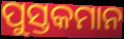
ପୁସ୍ତକମାନ